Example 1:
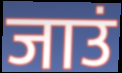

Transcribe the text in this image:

जाउं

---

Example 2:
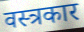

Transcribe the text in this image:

वस्त्रकार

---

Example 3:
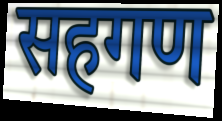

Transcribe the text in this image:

सहगण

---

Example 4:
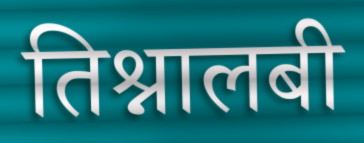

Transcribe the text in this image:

तिश्नालबी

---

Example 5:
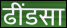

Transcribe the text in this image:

ढींडसा